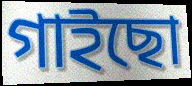
গাইছো